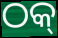
ଠକ୍